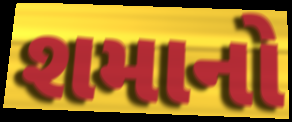
શમાનો